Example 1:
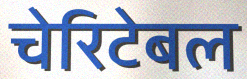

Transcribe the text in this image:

चेरिटेबल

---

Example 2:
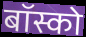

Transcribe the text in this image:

बॉस्को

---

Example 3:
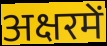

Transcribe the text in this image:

अक्षरमें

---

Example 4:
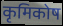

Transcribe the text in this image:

कृमिकोष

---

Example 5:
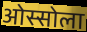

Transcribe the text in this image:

ओस्सोला